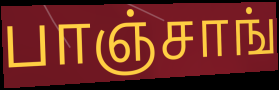
பாஞ்சாங்